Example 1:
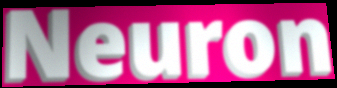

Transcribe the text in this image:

Neuron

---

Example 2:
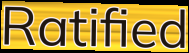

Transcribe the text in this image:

Ratified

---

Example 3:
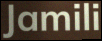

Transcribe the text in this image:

Jamili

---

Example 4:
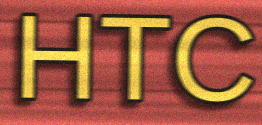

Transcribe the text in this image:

HTC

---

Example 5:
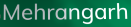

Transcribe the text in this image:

Mehrangarh